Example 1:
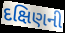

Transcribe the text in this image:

દક્ષિણની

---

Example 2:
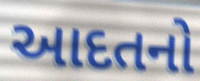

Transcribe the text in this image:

આદતનો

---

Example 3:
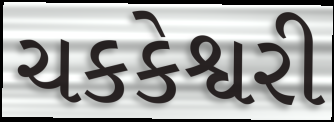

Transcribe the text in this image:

ચકકેશ્વરી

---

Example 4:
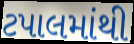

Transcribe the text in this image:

ટપાલમાંથી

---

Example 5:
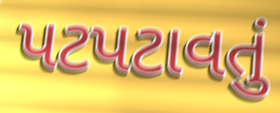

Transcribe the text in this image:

પટપટાવતું